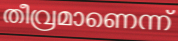
തീവ്രമാണെന്ന്